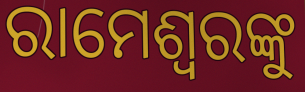
ରାମେଶ୍ୱରଙ୍କୁ